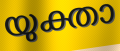
യുക്താ